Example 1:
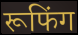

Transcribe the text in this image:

रूफिंग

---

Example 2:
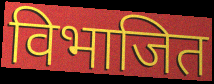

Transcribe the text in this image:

विभाजित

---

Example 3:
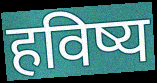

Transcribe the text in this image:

हविष्य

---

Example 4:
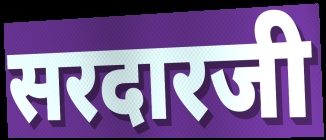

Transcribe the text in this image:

सरदारजी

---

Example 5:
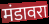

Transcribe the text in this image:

मंडावरा